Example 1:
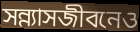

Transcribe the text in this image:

সন্ন্যাসজীবনেও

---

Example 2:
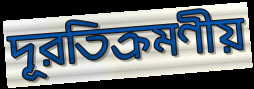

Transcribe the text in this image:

দূরতিক্রমণীয়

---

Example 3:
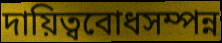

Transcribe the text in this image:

দায়িত্ববোধসম্পন্ন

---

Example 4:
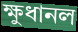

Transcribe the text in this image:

ক্ষুধানল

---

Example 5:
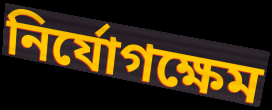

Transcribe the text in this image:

নির্যোগক্ষেম